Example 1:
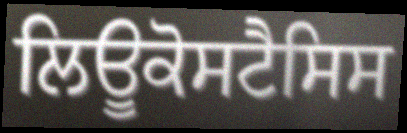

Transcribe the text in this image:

ਲਿਊਕੋਸਟੈਸਿਸ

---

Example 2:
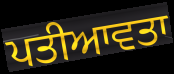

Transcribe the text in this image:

ਪਤੀਆਵਤਾ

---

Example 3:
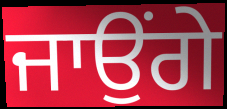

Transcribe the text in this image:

ਜਾਉਂਗੇ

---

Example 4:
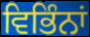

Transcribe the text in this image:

ਵਿਭਿੰਨਾਂ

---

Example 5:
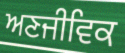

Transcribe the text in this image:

ਅਣਜੀਵਿਕ